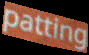
patting